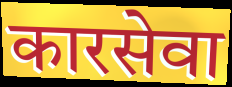
कारसेवा